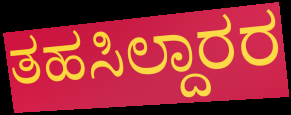
ತಹಸಿಲ್ದಾರರ